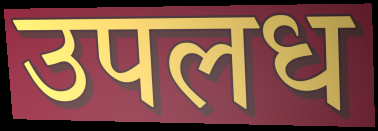
उपलध